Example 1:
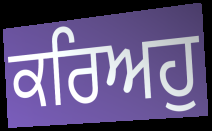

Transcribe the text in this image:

ਕਰਿਅਹੁ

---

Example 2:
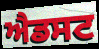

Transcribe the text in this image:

ਐਡਸਟ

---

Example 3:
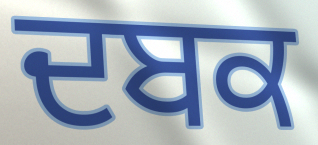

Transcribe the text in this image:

ਦਬਕ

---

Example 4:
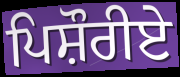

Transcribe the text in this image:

ਪਿਸ਼ੌਰੀਏ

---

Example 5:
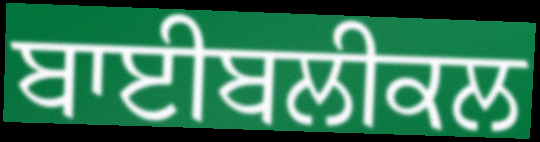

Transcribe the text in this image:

ਬਾਈਬਲੀਕਲ